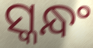
ସ୍କନ୍ଧଂ